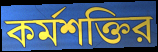
কর্মশক্তির